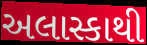
અલાસ્કાથી